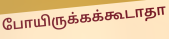
போயிருக்கக்கூடாதா